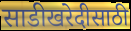
साडीखरेदीसाठी